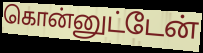
கொன்னுட்டேன்